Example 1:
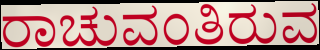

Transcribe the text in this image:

ರಾಚುವಂತಿರುವ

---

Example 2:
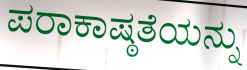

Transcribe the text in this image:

ಪರಾಕಾಷ್ಠತೆಯನ್ನು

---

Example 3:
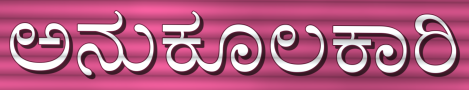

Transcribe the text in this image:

ಅನುಕೂಲಕಾರಿ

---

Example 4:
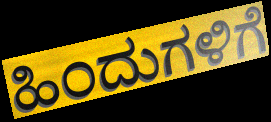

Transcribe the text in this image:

ಹಿಂದುಗಳಿಗೆ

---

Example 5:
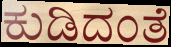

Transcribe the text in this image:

ಕುಡಿದಂತೆ